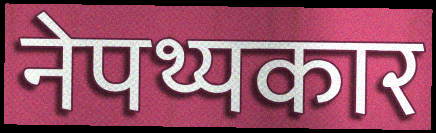
नेपथ्यकार